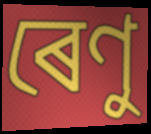
ৰেণু